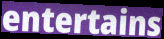
entertains